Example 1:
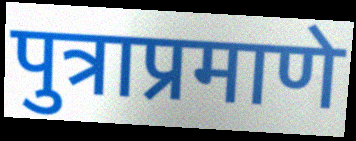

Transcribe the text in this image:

पुत्राप्रमाणे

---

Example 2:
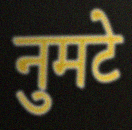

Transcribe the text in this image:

नुमटे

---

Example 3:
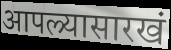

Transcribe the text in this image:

आपल्यासारखं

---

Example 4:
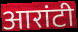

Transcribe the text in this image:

आरांटी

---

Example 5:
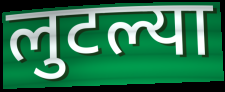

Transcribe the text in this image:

लुटल्या